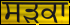
ਸੜਕਾ